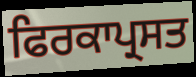
ਫਿਰਕਾਪ੍ਰਸਤ